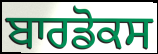
ਬਾਰਡੋਕਸ